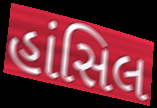
હાંસિલ